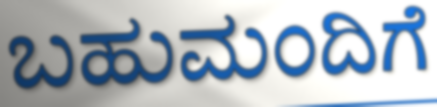
ಬಹುಮಂದಿಗೆ